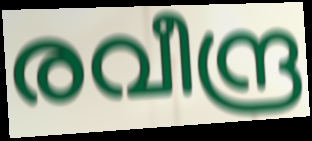
രവീന്ദ്ര